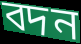
বদন